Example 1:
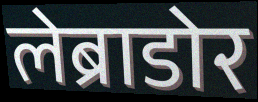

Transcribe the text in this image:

लेब्राडोर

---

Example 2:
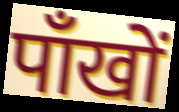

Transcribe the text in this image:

पाँखों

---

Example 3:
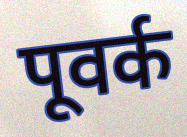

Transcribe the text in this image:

पूवर्क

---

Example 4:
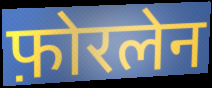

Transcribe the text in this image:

फ़ोरलेन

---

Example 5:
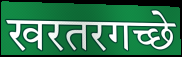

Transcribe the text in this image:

खरतरगच्छे